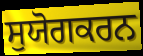
ਸੁਯੋਗਕਰਨ